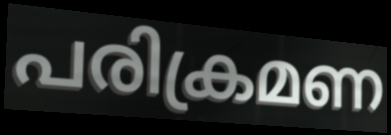
പരിക്രമണ